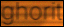
ghorit